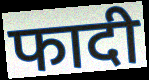
फादी